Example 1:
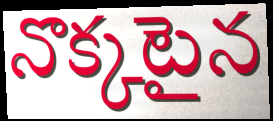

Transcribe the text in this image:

నొక్కటైన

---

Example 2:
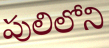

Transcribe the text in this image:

పులిలోని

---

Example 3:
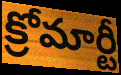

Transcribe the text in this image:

క్రోమార్టీ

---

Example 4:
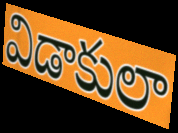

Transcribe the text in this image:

విడాకులా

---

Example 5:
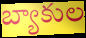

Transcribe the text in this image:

బ్యాకుల